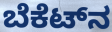
ಬೆಕೆಟ್‌ನ